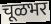
चूळभर